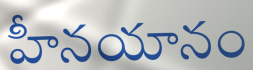
హీనయానం